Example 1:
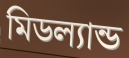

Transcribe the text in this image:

মিডল্যান্ড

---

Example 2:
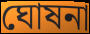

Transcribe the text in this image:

ঘোষনা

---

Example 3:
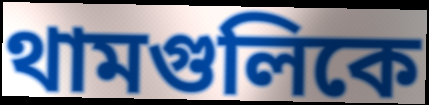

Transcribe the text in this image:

থামগুলিকে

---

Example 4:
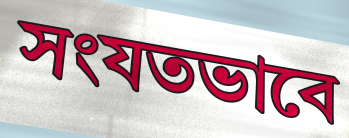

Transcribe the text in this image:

সংযতভাবে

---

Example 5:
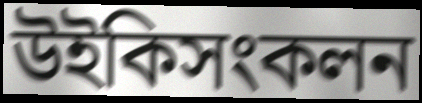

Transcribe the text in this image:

উইকিসংকলন